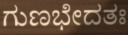
ಗುಣಭೇದತಃ